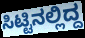
ಸಿಟ್ಟಿನಲ್ಲಿದ್ದ